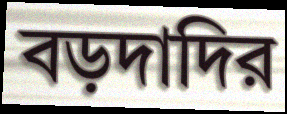
বড়দাদির